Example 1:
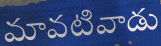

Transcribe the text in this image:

మావటివాడు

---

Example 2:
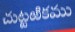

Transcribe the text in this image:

చుట్టఱికము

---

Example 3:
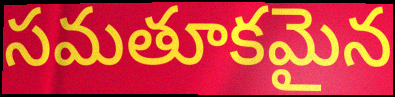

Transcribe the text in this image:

సమతూకమైన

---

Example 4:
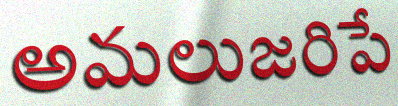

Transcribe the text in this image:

అమలుజరిపే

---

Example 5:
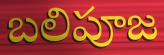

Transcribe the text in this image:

బలిపూజ